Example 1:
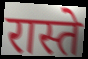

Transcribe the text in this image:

रास्ते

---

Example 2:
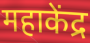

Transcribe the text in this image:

महाकेंद्र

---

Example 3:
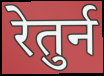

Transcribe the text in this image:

रेतुर्न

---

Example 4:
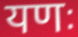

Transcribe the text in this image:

यणः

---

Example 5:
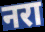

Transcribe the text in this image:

नरा